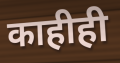
काहीही